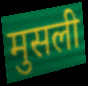
मुसली